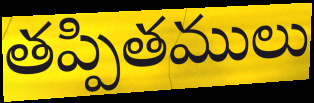
తప్పితములు